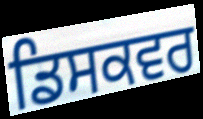
ਡਿਸਕਵਰ